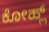
ಕೋಹ್ಲ್